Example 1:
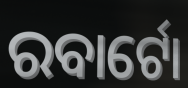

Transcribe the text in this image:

ରବାର୍ଟୋ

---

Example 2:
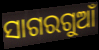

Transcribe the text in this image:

ସାଗରଗୁଆଁ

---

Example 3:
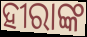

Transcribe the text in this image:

ହୀରାଙ୍କ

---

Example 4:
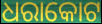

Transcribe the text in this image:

ଧରାକୋଟ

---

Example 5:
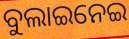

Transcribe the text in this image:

ବୁଲାଇନେଇ